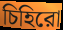
চিহিরো